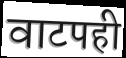
वाटपही